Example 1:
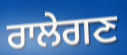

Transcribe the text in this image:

ਰਾਲੇਗਣ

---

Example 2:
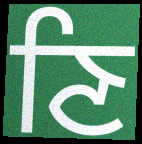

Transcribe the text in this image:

ਣਿ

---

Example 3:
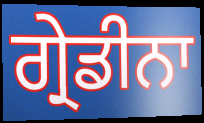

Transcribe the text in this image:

ਗ੍ਰੇਡੀਨਾ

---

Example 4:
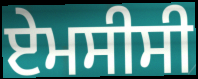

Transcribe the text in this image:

ਏਮਸੀਸੀ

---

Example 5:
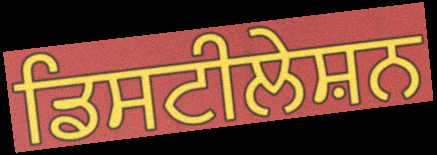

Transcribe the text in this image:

ਡਿਸਟੀਲੇਸ਼ਨ